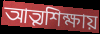
আত্মশিক্ষায়